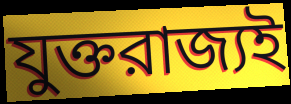
যুক্তরাজ্যই